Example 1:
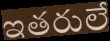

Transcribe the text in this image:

ఇతరులే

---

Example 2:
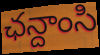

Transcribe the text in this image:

ఛన్దాంసి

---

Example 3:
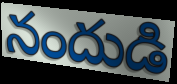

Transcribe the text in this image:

నందుడి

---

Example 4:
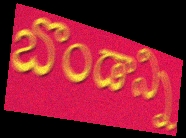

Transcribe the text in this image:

బొండాన్ని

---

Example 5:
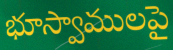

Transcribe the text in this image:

భూస్వాములపై